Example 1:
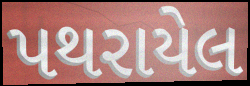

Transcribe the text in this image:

પથરાયેલ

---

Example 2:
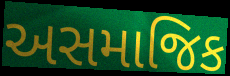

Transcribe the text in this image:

અસમાજિક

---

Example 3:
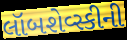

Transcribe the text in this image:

લૉબશેવ્સ્કીની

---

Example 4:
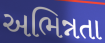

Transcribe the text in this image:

અભિન્નતા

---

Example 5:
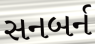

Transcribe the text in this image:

સનબર્ન